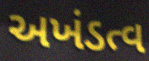
અખંડત્વ